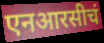
एनआरसीचं